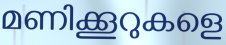
മണിക്കൂറുകളെ